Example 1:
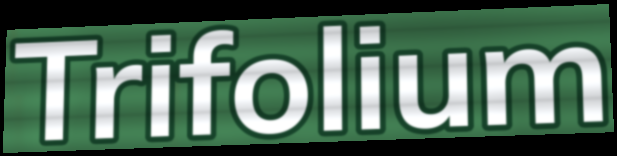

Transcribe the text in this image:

Trifolium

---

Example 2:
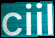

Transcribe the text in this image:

ciil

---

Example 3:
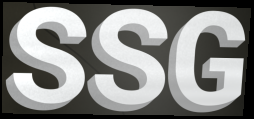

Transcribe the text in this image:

SSG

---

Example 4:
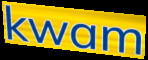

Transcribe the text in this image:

kwam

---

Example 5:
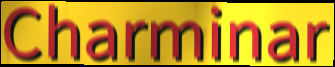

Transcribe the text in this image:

Charminar